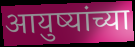
आयुष्यांच्या